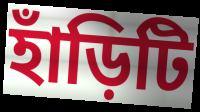
হাঁড়িটি